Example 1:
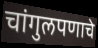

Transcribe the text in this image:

चांगुलपणाचे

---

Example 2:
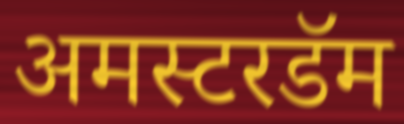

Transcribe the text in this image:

अमस्टरडॅम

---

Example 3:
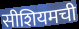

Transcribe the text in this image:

सीशियमची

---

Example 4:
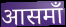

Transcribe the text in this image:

आसमाँ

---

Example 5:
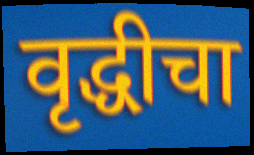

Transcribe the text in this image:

वृद्धीचा